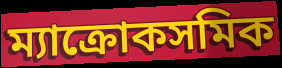
ম্যাক্রোকসমিক